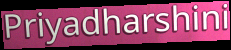
Priyadharshini